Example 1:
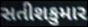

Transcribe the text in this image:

સતીશકુમાર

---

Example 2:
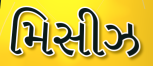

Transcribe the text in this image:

મિસીઝ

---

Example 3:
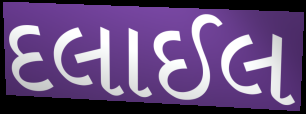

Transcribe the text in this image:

દલાઈલ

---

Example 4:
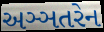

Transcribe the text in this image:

અઞ્ઞતરેન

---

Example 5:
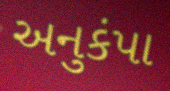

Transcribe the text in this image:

અનુકંપા